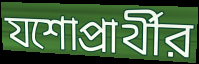
যশোপ্রার্থীর